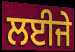
ਲਈਜੇ